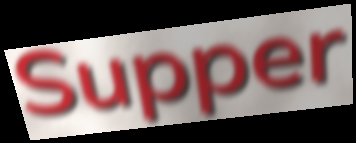
Supper